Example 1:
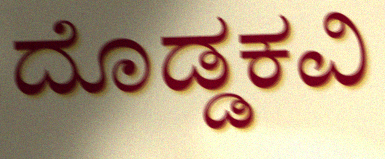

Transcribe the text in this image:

ದೊಡ್ಡಕವಿ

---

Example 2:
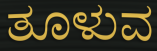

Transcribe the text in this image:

ತೂಳುವ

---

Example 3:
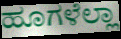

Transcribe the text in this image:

ಹೂಗಳೆಲ್ಲಾ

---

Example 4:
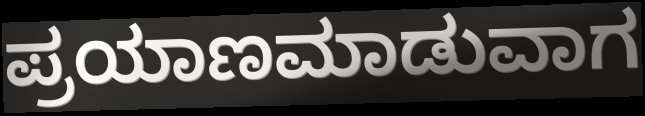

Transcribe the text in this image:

ಪ್ರಯಾಣಮಾಡುವಾಗ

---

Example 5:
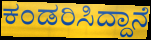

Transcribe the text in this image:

ಕಂಡರಿಸಿದ್ದಾನೆ